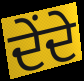
ਦੇਂਦੇ